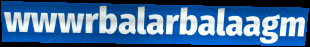
wwwrbalarbalaagm